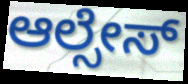
ಆಲ್ಸೇಸ್